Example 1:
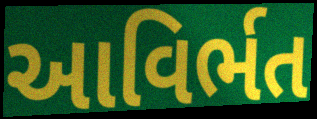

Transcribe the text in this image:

આવિર્ભત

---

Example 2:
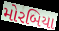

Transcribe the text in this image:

મોરબિયા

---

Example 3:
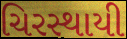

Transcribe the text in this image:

ચિરસ્થાયી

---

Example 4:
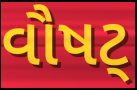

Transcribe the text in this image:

વૌષટ્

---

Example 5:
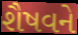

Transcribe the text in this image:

શૈષવને